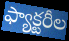
ఫ్యాక్టరీల